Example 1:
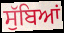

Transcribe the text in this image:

ਸੁੱਬਿਆਂ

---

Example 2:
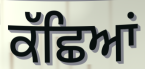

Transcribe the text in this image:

ਕੱਛਿਆਂ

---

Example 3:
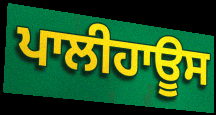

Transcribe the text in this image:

ਪਾਲੀਹਾਊਸ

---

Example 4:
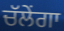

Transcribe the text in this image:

ਚੱਲੇਂਗਾ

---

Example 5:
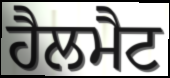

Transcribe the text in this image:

ਹੈਲਮੈਟ